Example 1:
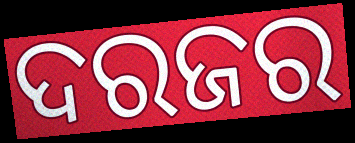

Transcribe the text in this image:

ଦରଜର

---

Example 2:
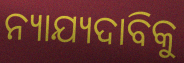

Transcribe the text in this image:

ନ୍ୟାଯ୍ୟଦାବିକୁ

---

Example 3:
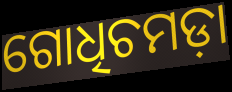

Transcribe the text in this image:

ଗୋଧିଚମଡ଼ା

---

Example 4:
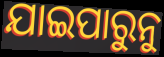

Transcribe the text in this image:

ଯାଇପାରୁନୁ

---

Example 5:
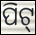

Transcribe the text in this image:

ପିଟ୍